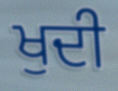
ਖੁਦੀ